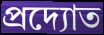
প্রদ্যোত